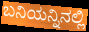
ಬನಿಯನ್ನಿನಲ್ಲಿ